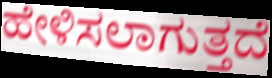
ಹೇಳಿಸಲಾಗುತ್ತದೆ